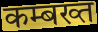
कम्बख्त